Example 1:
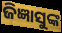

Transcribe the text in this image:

ଜିଜ୍ଞାସୁଙ୍କ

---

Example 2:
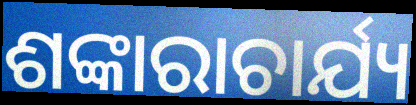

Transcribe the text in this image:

ଶଙ୍କାରାଚାର୍ଯ୍ୟ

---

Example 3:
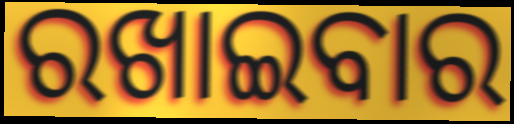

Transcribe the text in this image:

ରଖାଇବାର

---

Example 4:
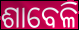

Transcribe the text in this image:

ଶାବେଳି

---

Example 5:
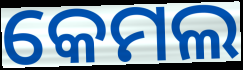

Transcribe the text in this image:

କେମଲ